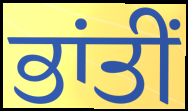
ਭਾਂਤੀਂ